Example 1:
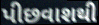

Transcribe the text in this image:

પીછવાશથી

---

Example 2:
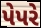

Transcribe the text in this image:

પેપરે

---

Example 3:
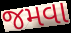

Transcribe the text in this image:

જમવા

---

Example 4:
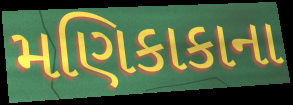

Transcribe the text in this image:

મણિકાકાના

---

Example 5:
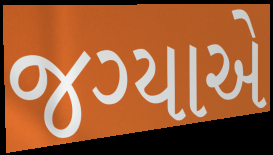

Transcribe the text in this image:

જગ્યાએ